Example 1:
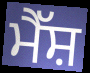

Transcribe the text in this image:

ਮੈੱਸ਼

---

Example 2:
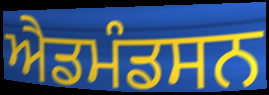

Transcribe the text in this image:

ਐਡਮੰਡਸਨ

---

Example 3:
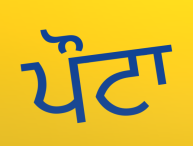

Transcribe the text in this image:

ਪੌਟਾ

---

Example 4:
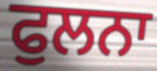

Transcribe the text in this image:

ਫੁਲਨਾ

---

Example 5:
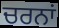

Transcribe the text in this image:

ਚਰਨਾਂ